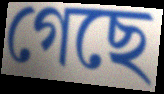
গেছে